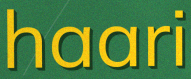
haari